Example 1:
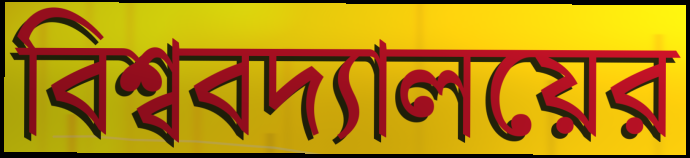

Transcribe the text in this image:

বিশ্ববদ্যালয়ের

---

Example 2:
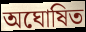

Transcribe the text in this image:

অঘোষিত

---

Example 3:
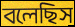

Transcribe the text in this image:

বলেছিস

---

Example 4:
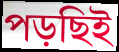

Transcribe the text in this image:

পড়ছিই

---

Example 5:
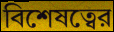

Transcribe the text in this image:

বিশেষত্বের